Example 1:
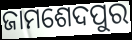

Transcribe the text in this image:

ଜାମଶେଦପୁର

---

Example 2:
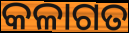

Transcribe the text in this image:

କଳାଗତ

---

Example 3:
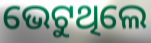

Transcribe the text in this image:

ଭେଟୁଥିଲେ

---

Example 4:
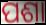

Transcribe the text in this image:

ପଶା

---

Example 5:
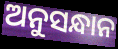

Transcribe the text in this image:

ଅନୁସନ୍ଧାନ